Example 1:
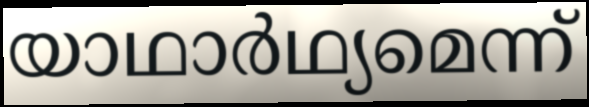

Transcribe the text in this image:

യാഥാർഥ്യമെന്ന്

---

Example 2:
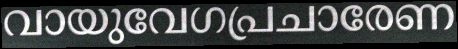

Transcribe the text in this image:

വായുവേഗപ്രചാരേണ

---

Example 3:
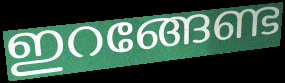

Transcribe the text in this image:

ഇറങ്ങേണ്ട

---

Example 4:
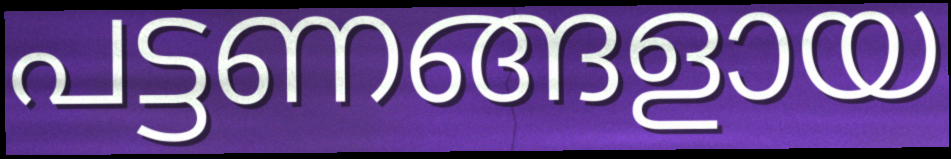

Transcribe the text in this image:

പട്ടണങ്ങളായ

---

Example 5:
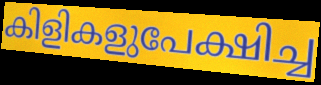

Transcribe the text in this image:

കിളികളുപേക്ഷിച്ച